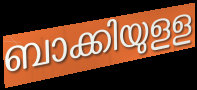
ബാക്കിയുളള